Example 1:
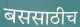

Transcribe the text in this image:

बससाठीच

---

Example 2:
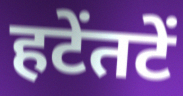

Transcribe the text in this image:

हटेंतटें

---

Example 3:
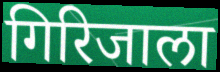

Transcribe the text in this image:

गिरिजाला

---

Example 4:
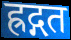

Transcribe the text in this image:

ह्रद्गत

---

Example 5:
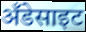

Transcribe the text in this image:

अँडेसाइट